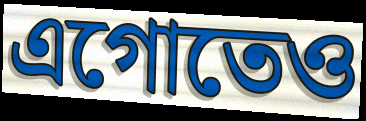
এগোতেও